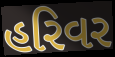
હરિવર